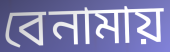
বেনামায়